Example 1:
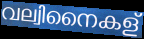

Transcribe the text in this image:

വല്വിനൈകള്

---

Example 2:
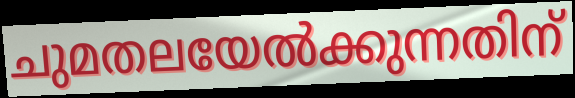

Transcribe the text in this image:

ചുമതലയേൽക്കുന്നതിന്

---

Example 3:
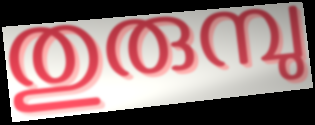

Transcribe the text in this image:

തുരുമ്പു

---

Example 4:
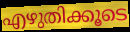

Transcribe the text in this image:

എഴുതിക്കൂടെ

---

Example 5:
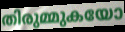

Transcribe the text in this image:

തിരുമ്മുകയോ